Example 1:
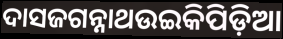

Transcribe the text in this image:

ଦାସଜଗନ୍ନାଥଉଇକିପିଡ଼ିଆ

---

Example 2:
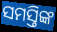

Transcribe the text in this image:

ସମସ୍ତିଙ୍କ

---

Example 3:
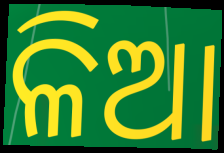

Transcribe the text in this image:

ଳିଆ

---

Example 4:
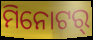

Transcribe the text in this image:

ମିନୋଟର୍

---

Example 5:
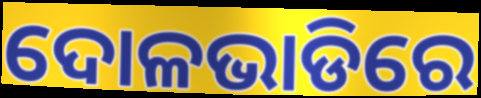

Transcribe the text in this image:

ଦୋଳଭାଡିରେ